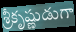
శ్రీకృష్ణుడుగా